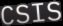
CSIS